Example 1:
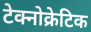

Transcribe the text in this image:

टेक्नोक्रेटिक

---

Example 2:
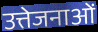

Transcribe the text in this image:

उत्तेजनाओं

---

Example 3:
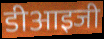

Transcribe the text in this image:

डीआइजी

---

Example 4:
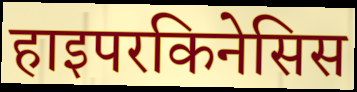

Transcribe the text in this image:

हाइपरकिनेसिस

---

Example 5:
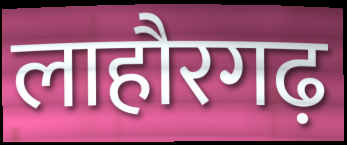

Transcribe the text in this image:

लाहौरगढ़